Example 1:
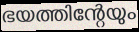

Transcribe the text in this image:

ഭയത്തിന്റേയും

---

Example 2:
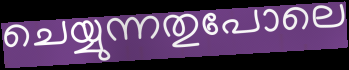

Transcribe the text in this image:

ചെയ്യുന്നതുപോലെ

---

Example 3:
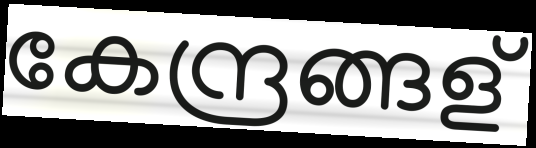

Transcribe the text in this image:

കേന്ദ്രങ്ങള്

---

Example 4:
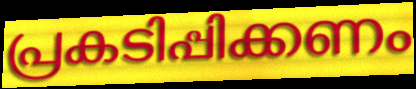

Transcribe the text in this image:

പ്രകടിപ്പിക്കണം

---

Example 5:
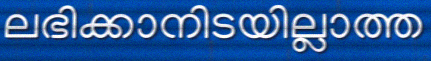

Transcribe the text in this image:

ലഭിക്കാനിടയില്ലാത്ത